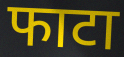
फाटा